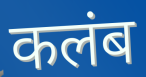
कलंब